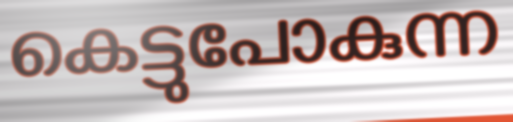
കെട്ടുപോകുന്ന